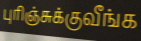
புரிஞ்சுக்குவீங்க